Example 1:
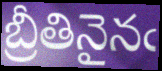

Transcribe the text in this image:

బ్రీతినైనఁ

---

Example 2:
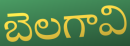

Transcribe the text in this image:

బెలగావి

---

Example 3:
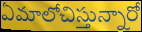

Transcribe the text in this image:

ఏమాలోచిస్తున్నారో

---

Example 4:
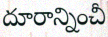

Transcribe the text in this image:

దూరాన్నించీ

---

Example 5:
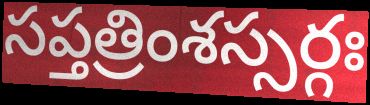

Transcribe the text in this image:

సప్తత్రింశస్సర్గః